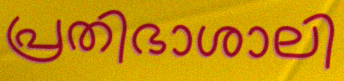
പ്രതിഭാശാലി